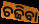
ଚଢିବା